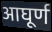
आघूर्ण